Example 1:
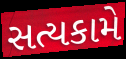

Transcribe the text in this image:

સત્યકામે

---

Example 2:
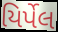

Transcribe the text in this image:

યિર્પેલ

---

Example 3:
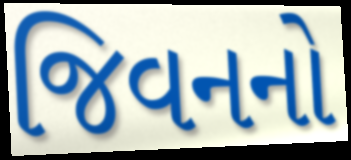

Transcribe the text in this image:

જિવનનો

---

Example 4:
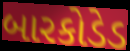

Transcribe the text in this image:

બારકોડેડ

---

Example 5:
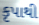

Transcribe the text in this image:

કૃપાથી